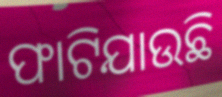
ଫାଟିଯାଉଛି